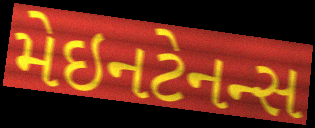
મેઇનટેનન્સ